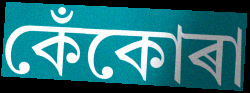
কেঁকোৰা